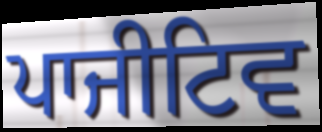
ਪਾਜੀਟਿਵ